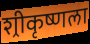
श्रीकृष्णला